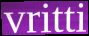
vritti